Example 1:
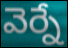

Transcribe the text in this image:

వెర్నే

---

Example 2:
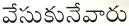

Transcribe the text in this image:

వేసుకునేవారు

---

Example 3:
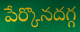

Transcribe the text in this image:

పేర్కొనదగ్గ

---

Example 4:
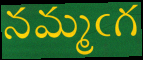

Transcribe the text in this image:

నమ్మఁగ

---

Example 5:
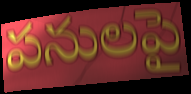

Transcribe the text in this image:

పనులపై